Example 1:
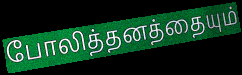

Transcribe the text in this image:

போலித்தனத்தையும்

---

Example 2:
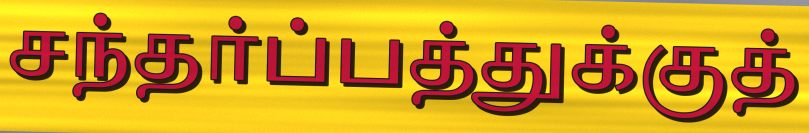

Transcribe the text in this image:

சந்தர்ப்பத்துக்குத்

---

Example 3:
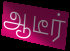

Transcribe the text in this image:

ஆடீர்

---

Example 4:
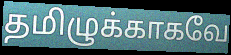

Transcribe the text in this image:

தமிழுக்காகவே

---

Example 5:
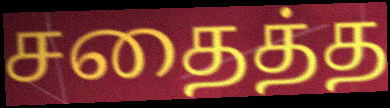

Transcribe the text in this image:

சதைத்த